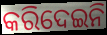
କରିଦେଇନି